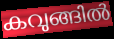
കവുങ്ങിൽ